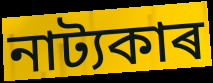
নাট্যকাৰ